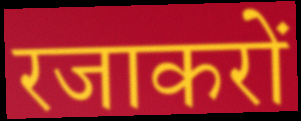
रजाकरों